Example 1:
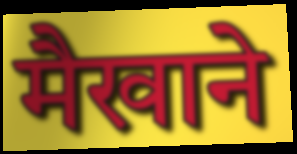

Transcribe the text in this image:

मैखाने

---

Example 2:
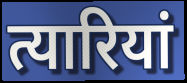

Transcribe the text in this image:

त्यारियां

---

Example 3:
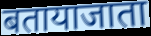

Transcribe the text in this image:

बतायाजाता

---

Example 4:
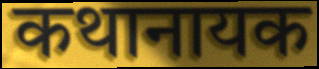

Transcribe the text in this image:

कथानायक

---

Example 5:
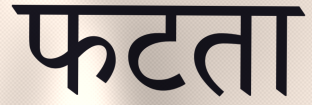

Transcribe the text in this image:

फटता